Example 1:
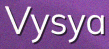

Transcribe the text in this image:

Vysya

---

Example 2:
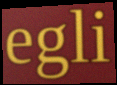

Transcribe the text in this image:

egli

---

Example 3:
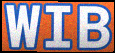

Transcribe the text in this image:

WIB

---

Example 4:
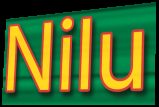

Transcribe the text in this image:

Nilu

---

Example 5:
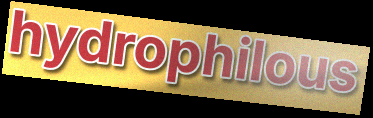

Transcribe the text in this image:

hydrophilous